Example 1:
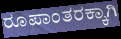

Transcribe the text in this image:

ರೂಪಾಂತರಕ್ಕಾಗಿ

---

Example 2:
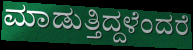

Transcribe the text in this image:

ಮಾಡುತ್ತಿದ್ದಳೆಂದರೆ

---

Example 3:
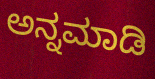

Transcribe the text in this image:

ಅನ್ನಮಾಡಿ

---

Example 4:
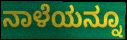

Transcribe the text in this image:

ನಾಳೆಯನ್ನೂ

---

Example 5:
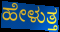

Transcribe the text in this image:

ಹೇಳುತ್ತ